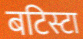
बटिस्टा